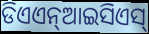
ଡିଏଏନ୍ଆଇସିଏସ୍